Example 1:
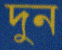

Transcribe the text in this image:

দুন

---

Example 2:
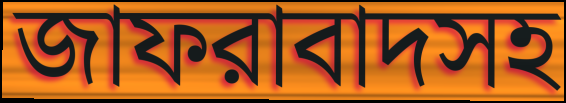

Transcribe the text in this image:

জাফরাবাদসহ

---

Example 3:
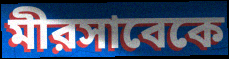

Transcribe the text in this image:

মীরসাবেকে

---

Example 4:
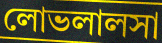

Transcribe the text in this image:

লোভলালসা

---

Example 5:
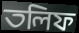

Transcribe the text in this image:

তলিফ